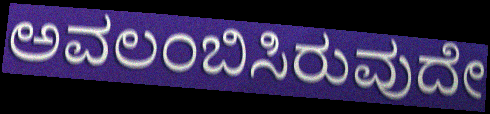
ಅವಲಂಬಿಸಿರುವುದೇ